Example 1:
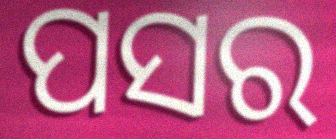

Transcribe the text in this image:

ପସର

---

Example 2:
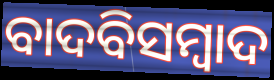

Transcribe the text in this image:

ବାଦବିସମ୍ବାଦ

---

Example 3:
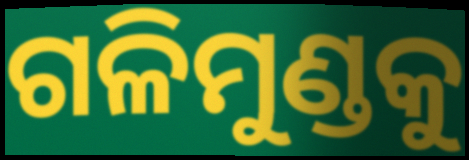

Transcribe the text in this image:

ଗଳିମୁଣ୍ଡକୁ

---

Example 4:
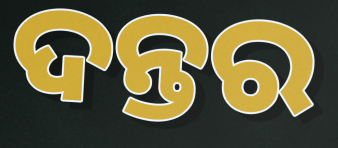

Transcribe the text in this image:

ଦନ୍ତର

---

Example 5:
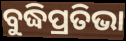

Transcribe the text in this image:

ବୁଦ୍ଧିପ୍ରତିଭା